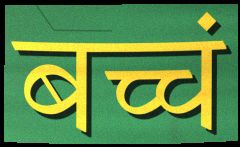
बच्चं